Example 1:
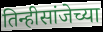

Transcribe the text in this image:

तिन्हीसांजेच्या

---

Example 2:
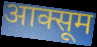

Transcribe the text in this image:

आक्सूम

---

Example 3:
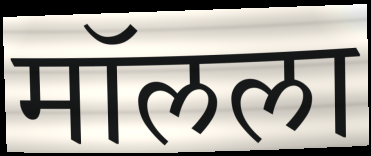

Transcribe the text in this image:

मॉलला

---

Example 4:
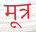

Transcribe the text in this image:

मूत्र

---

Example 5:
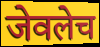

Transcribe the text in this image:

जेवलेच